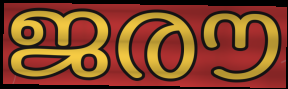
ജരൗ